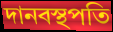
দানবস্থপতি